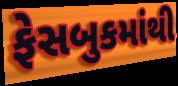
ફેસબુકમાંથી